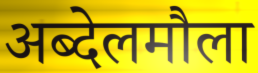
अब्देलमौला